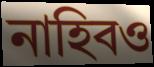
নাহিবও